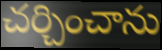
చర్చించాను